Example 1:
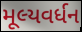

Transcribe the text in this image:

મૂલ્યવર્ધન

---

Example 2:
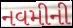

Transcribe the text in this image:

નવમીની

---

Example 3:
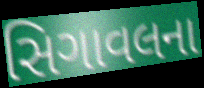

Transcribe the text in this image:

સિગાવલના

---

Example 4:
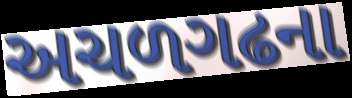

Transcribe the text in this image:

અચળગઢના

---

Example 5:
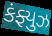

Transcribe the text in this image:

કંફ્યુઝ